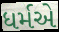
ધર્મએ